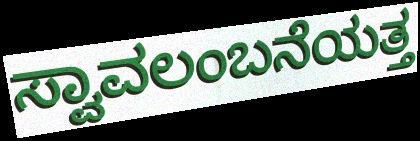
ಸ್ವಾವಲಂಬನೆಯತ್ತ